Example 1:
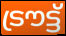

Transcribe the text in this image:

ട്രൗട്ട്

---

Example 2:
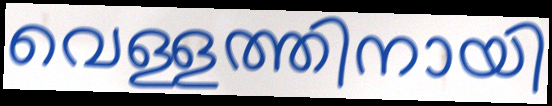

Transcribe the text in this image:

വെള്ളത്തിനായി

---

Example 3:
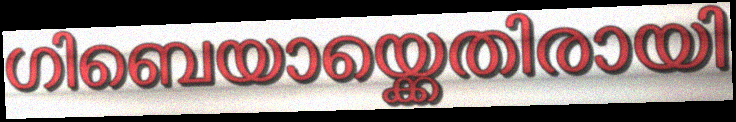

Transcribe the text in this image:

ഗിബെയായ്ക്കെതിരായി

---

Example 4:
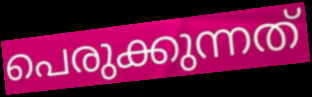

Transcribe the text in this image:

പെരുക്കുന്നത്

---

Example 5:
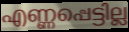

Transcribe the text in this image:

എണ്ണപ്പെട്ടില്ല